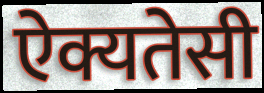
ऐक्यतेसी